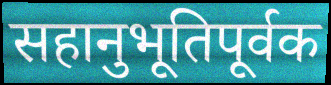
सहानुभूतिपूर्वक